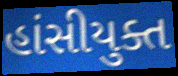
હાંસીયુક્ત